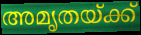
അമൃതയ്ക്ക്